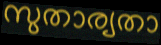
സുതാര്യതാ